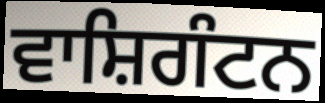
ਵਾਸ਼ਿਗੰਟਨ